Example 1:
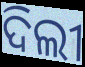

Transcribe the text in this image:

ଦିଲୀ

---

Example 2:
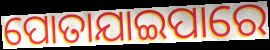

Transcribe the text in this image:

ପୋତାଯାଇପାରେ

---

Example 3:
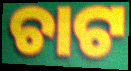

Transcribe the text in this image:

ଚାଟ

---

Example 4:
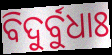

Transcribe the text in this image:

ବିଦୁର୍ବୁଧାଃ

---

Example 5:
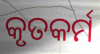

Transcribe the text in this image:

କୃତକର୍ମ